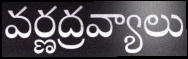
వర్ణద్రవ్యాలు